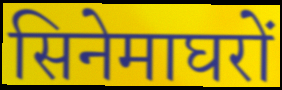
सिनेमाघरों